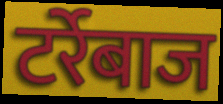
टर्रेबाज